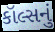
કૉલ્સનું